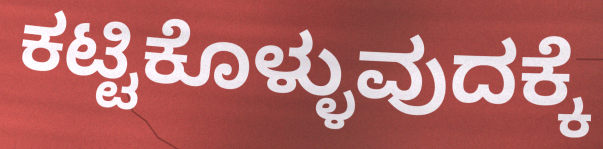
ಕಟ್ಟಿಕೊಳ್ಳುವುದಕ್ಕೆ